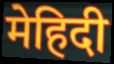
मेहिदी